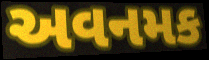
અવનમક